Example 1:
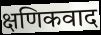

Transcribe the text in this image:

क्षणिकवाद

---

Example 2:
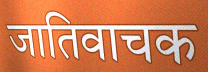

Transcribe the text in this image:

जातिवाचक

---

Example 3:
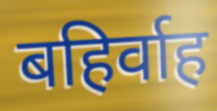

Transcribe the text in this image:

बहिर्वाह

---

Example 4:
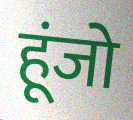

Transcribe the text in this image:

हूंजो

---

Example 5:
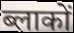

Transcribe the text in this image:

ब्लाकों